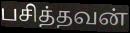
பசித்தவன்